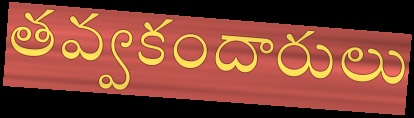
తవ్వకందారులు